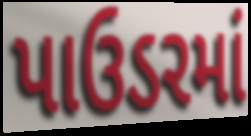
પાઉડરમાં